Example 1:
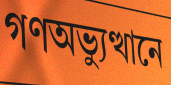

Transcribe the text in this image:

গণঅভ্যুত্থানে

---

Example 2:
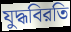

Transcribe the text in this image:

যুদ্ধবিরতি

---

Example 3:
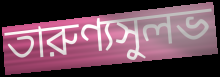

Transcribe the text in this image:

তারুণ্যসুলভ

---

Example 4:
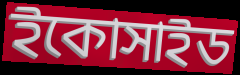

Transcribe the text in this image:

ইকোসাইড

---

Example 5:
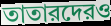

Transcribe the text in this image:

তাতারদেরও